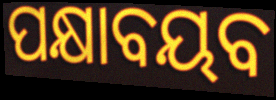
ପକ୍ଷାବୟବ